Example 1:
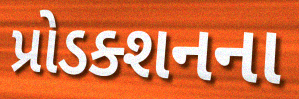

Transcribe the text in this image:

પ્રોડક્શનના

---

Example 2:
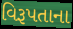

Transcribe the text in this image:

વિરૂપતાના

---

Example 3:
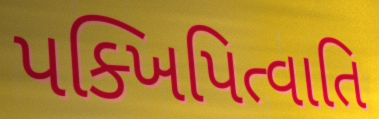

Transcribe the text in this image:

પક્ખિપિત્વાતિ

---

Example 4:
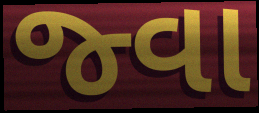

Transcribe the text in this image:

જ્વા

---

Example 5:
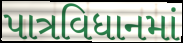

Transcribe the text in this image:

પાત્રવિધાનમાં